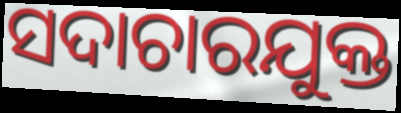
ସଦାଚାରଯୁକ୍ତ